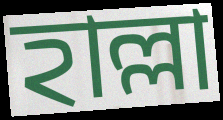
হাল্লা